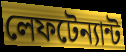
লেফটেন্যান্ট